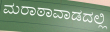
ಮರಾಠಾವಾಡದಲ್ಲಿ